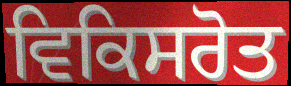
ਵਿਕਿਸਰੋਤ